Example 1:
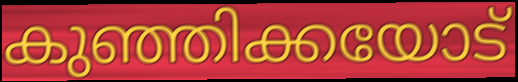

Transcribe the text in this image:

കുഞ്ഞിക്കയോട്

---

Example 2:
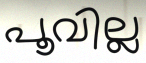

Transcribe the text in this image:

പൂവില്ല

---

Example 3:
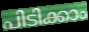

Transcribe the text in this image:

പിടിക്കാം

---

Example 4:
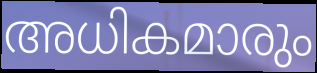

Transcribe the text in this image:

അധികമാരും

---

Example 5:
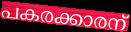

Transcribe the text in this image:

പകരക്കാരന്